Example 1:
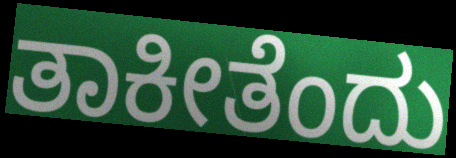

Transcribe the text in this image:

ತಾಕೀತೆಂದು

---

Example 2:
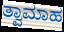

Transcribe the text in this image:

ತ್ವಾಮಾಹ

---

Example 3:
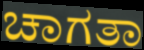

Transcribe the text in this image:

ಚಾಗತಾ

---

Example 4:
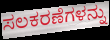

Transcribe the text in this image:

ಸಲಕರಣೆಗಳನ್ನು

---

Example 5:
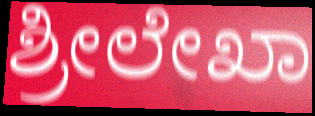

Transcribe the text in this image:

ಶ್ರೀಲೇಖಾ